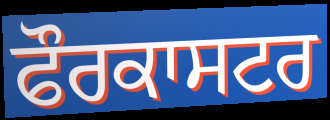
ਫੌਰਕਾਸਟਰ